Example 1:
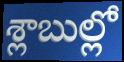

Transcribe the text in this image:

శ్లాబుల్లో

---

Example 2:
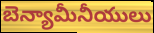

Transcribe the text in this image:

బెన్యామీనీయులు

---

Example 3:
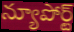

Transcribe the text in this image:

న్యూపోర్ట్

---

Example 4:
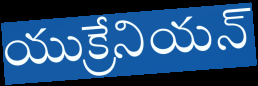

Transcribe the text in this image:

యుక్రేనియన్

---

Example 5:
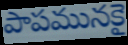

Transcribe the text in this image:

పాపమునకై